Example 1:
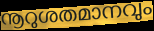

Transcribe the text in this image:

നൂറുശതമാനവും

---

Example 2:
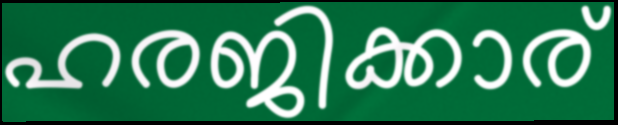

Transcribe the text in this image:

ഹരജിക്കാര്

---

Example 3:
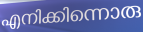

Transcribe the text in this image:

എനിക്കിന്നൊരു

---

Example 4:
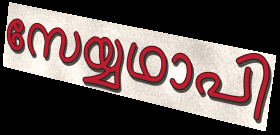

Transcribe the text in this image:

സേയ്യഥാപി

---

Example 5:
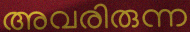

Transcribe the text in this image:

അവരിരുന്ന